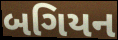
બગિયન